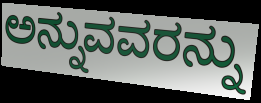
ಅನ್ನುವವರನ್ನು